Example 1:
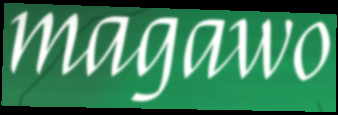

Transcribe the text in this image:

magawo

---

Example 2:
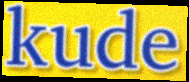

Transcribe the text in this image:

kude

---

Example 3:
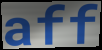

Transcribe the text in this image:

aff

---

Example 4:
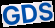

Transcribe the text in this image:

GDS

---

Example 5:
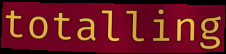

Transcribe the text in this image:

totalling